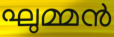
ഘുമ്മൻ